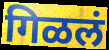
गिळलं